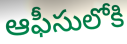
ఆఫీసులోకి